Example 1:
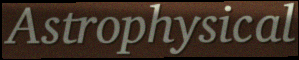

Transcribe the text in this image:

Astrophysical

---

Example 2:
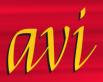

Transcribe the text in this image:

avi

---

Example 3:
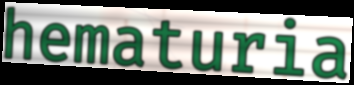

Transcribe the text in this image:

hematuria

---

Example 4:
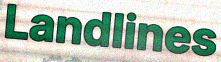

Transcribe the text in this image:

Landlines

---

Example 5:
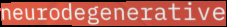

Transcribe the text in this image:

neurodegenerative